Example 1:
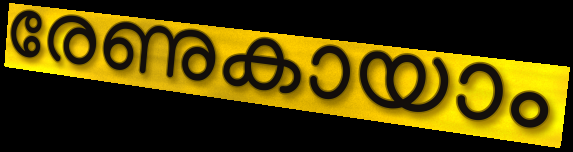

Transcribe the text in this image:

രേണുകായാം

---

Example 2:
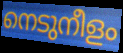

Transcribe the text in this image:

നെടുനീളം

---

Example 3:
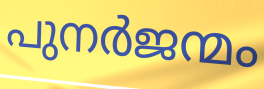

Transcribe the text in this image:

പുനർജന്മം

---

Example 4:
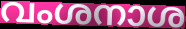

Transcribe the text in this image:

വംശനാശ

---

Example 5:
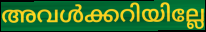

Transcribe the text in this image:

അവൾക്കറിയില്ലേ